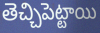
తెచ్చిపెట్టాయి